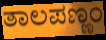
ತಾಲಪಣ್ಣಂ